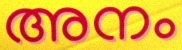
അനം